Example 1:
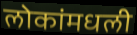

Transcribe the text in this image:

लोकांमधली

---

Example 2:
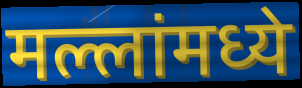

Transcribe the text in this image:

मल्लांमध्ये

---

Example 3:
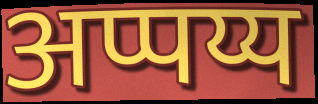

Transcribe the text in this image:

अप्पय्य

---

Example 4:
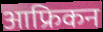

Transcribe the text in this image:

आफ्रिकन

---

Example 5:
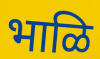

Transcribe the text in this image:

भाळि